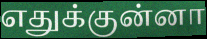
எதுக்குன்னா